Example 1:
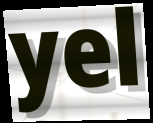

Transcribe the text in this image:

yel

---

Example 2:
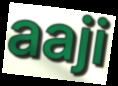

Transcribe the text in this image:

aaji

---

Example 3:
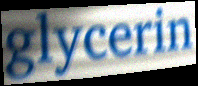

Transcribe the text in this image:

glycerin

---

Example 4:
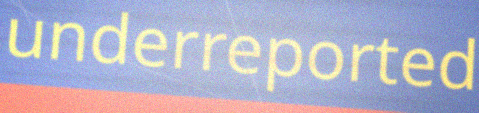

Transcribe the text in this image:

underreported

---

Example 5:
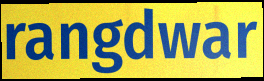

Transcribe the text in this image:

rangdwar